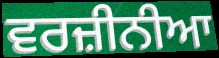
ਵਰਜ਼ੀਨੀਆ